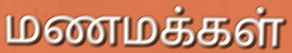
மணமக்கள்